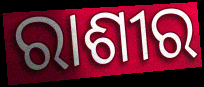
ରାଶୀର